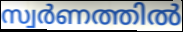
സ്വർണത്തിൽ